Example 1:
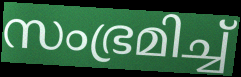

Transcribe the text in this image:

സംഭ്രമിച്ച്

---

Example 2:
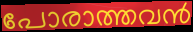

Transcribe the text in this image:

പോരാത്തവൻ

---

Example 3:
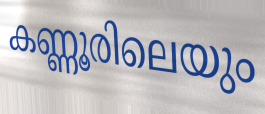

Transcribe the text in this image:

കണ്ണൂരിലെയും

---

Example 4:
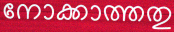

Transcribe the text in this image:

നോക്കാത്തതു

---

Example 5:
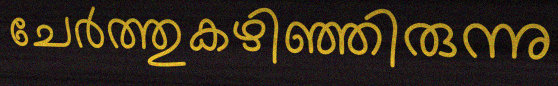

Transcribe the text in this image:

ചേർത്തുകഴിഞ്ഞിരുന്നു